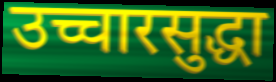
उच्चारसुद्धा